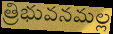
త్రిభువనమల్ల